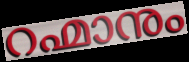
റഹ്മാനും